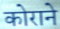
कोराने